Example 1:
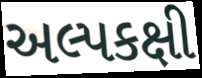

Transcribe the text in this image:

અલ્પકક્ષી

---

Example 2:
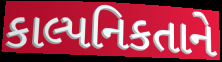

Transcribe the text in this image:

કાલ્પનિકતાને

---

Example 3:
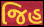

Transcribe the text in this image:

જિહ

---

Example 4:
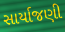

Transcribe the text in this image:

સાર્યાજણી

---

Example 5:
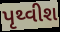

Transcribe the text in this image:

પૃથ્વીશ